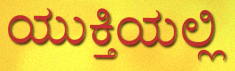
ಯುಕ್ತಿಯಲ್ಲಿ